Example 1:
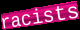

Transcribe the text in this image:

racists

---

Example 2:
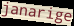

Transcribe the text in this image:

janarige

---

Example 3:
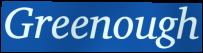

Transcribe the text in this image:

Greenough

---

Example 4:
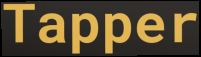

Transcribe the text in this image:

Tapper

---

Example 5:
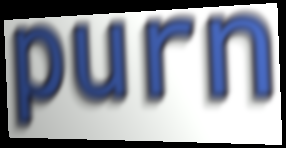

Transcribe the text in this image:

purn